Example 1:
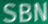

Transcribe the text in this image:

SBN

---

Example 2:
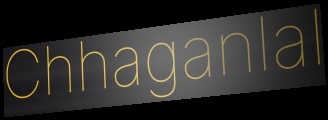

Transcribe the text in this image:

Chhaganlal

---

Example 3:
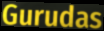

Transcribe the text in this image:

Gurudas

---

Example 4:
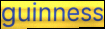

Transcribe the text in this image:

guinness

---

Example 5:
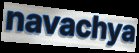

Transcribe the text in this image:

navachya